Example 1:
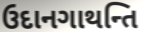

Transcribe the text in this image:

ઉદાનગાથન્તિ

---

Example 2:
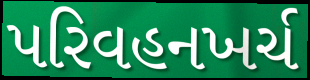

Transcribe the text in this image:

પરિવહનખર્ચ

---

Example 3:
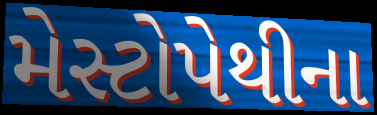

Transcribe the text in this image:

મેસ્ટોપેથીના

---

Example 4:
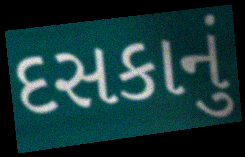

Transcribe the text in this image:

દસકાનું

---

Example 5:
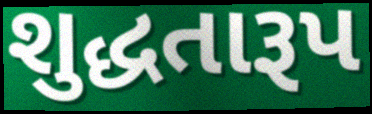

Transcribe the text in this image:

શુદ્ધતારૂપ